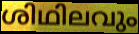
ശിഥിലവും